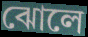
ঝোলে